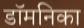
डॉमनिका